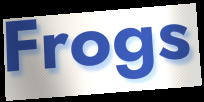
Frogs